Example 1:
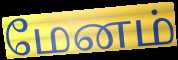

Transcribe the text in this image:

மேனம்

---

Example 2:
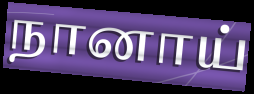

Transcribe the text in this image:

நானாய்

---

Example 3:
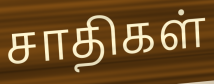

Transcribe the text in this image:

சாதிகள்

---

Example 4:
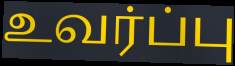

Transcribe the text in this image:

உவர்ப்பு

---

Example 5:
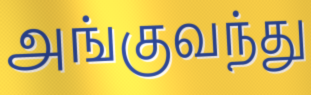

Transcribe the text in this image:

அங்குவந்து